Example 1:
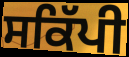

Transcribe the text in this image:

ਸਕਿੱਪੀ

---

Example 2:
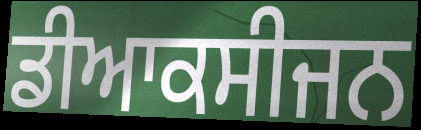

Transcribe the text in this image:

ਡੀਆਕਸੀਜਨ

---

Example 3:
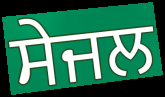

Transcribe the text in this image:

ਸੇਜਲ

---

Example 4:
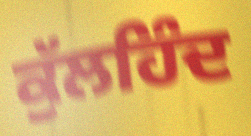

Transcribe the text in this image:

ਕੁੱਲਹਿੰਦ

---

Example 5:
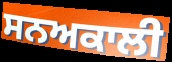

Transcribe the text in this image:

ਸਨਅਕਾਲੀ